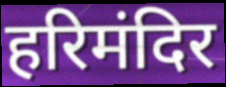
हरिमंदिर